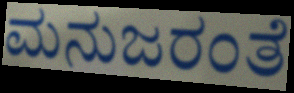
ಮನುಜರಂತೆ